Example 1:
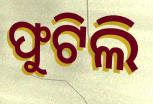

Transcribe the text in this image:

ଫୁଟିଲି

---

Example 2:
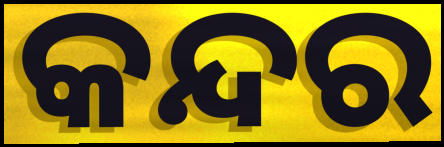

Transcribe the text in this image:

କନ୍ଦର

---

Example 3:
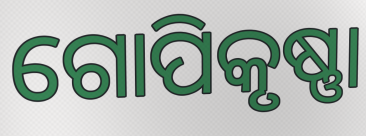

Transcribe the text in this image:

ଗୋପିକୃଷ୍ଣା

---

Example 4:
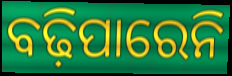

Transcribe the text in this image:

ବଢ଼ିପାରେନି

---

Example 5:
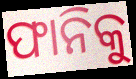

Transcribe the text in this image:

ଫାନିକୁ